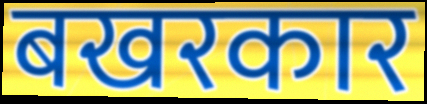
बखरकार